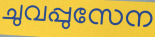
ചുവപ്പുസേന